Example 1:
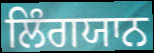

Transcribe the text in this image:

ਲਿੰਗਯਾਨ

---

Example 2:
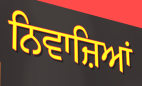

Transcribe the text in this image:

ਨਿਵਾਜ਼ਿਆਂ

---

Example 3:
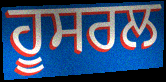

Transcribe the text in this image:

ਹੂਸਰਲ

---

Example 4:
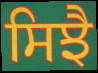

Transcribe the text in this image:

ਸਿਝੈ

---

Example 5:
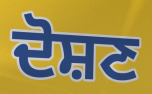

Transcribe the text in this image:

ਦੋਸ਼ਣ